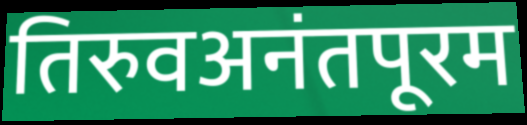
तिरुवअनंतपूरम